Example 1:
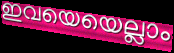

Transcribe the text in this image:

ഇവയെയെല്ലാം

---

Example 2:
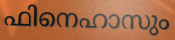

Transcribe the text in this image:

ഫിനെഹാസും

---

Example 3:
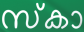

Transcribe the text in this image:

സ്കാ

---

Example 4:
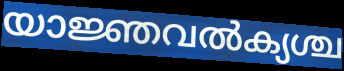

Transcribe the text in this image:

യാജ്ഞവൽക്യശ്ച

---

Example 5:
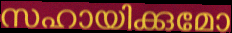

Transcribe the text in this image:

സഹായിക്കുമോ